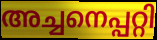
അച്ചനെപ്പറ്റി